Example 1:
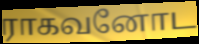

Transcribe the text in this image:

ராகவனோட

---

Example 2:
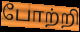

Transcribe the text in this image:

போற்றி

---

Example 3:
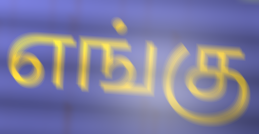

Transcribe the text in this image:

எங்கு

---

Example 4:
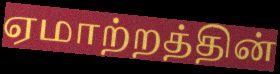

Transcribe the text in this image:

ஏமாற்றத்தின்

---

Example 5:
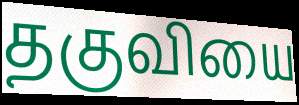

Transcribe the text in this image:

தகுவியை